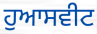
ਹੁਆਸਵੀਟ